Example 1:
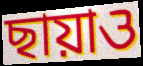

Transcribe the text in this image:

ছায়াও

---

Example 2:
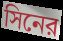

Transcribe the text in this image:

সিনের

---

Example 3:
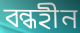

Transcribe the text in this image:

বন্ধহীন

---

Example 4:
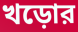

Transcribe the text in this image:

খড়োর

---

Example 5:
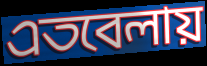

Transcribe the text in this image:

এতবেলায়